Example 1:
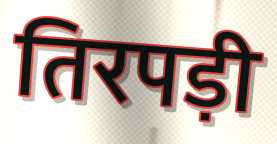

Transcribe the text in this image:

तिरपड़ी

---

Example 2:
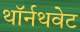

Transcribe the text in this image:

थॉर्नथवेट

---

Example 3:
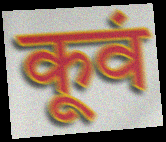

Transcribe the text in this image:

कूवं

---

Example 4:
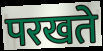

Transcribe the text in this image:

परखते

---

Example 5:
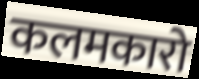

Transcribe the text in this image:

कलमकारो